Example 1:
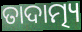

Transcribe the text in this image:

ତାଦାତ୍ମ୍ୟ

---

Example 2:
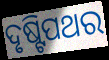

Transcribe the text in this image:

ଦୃଷ୍ଟିପଥର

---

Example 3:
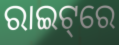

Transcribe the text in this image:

ରାଇଟ୍‌ରେ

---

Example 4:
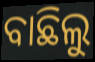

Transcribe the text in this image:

ବାଛିଲୁ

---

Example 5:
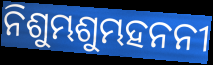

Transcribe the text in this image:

ନିଶୁମ୍ଭଶୁମ୍ଭହନନୀ